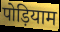
पोड़ियाम